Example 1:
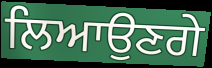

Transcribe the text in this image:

ਲਿਆਉਣਗੇ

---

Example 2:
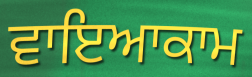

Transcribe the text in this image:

ਵਾਇਆਕਾਮ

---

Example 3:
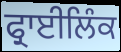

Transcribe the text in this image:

ਫ੍ਰਾਈਲਿੰਕ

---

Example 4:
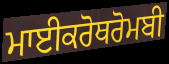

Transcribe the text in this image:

ਮਾਈਕਰੋਥਰੋਮਬੀ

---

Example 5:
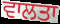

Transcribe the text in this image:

ਵਾਲਤਾ